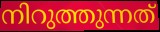
നിറുത്തുന്നത്